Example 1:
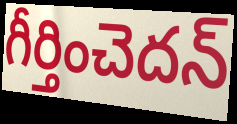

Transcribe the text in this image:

గీర్తించెదన్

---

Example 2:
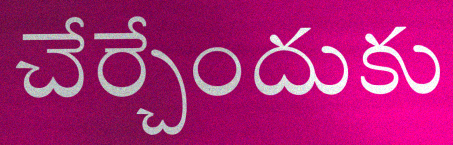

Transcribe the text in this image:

చేర్చేందుకు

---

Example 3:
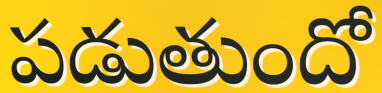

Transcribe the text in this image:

పడుతుందో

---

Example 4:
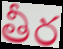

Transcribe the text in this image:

తీర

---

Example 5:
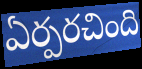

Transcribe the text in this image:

ఏర్పరచింది